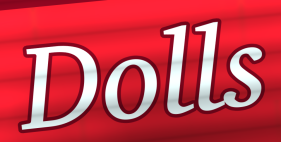
Dolls